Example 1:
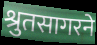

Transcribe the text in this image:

श्रुतसागरने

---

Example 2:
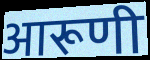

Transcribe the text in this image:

आरूणी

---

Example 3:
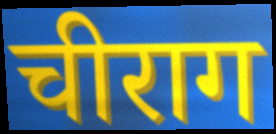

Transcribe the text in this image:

चीराग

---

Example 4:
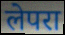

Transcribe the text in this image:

लेपरा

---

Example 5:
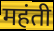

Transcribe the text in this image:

महंती